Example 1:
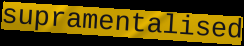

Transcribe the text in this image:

supramentalised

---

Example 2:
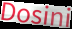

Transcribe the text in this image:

Dosini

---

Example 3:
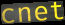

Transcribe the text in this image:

cnet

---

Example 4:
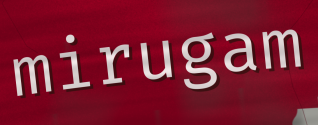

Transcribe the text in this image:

mirugam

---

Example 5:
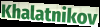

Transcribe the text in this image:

Khalatnikov